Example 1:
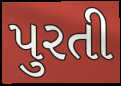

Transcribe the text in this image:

પુરતી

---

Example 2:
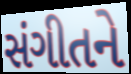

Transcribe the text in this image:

સંગીતને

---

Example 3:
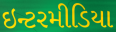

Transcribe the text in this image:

ઇન્ટરમીડિયા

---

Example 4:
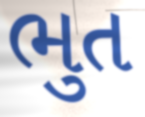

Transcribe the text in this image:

ભુત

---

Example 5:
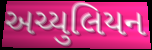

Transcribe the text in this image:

અચ્યુલિયન